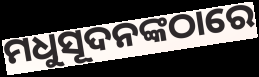
ମଧୁସୂଦନଙ୍କଠାରେ